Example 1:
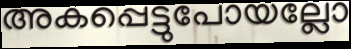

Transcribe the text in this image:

അകപ്പെട്ടുപോയല്ലോ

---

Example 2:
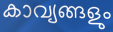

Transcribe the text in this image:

കാവ്യങ്ങളും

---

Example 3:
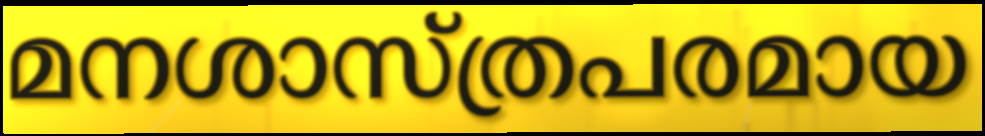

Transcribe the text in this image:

മനശാസ്ത്രപരമായ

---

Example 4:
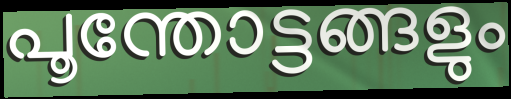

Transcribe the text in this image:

പൂന്തോട്ടങ്ങളും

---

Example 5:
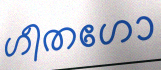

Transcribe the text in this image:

ഗീതഗോ